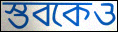
স্তবকেও